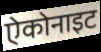
ऐकोनाइट